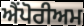
ਐਂਪੋਰੀਅਮ